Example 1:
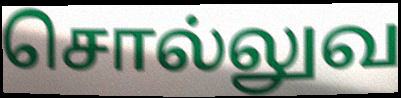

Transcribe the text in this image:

சொல்லுவ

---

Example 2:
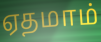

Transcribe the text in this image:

ஏதமாம்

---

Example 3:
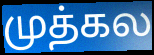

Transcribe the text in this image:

முத்கல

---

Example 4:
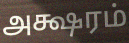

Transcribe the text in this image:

அக்ஷரம்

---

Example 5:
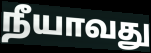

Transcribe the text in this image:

நீயாவது